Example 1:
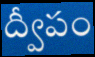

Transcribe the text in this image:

ద్వీపం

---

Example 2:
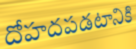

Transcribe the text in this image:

దోహదపడటానికి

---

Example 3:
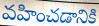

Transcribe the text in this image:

వహించడానికి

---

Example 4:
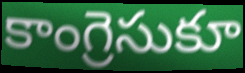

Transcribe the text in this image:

కాంగ్రెసుకూ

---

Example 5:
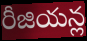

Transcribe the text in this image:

రీజియన్ల